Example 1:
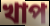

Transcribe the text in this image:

খাপ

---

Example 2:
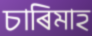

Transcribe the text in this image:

চাৰিমাহ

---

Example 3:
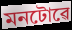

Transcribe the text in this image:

মনটোৱে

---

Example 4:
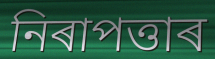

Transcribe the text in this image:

নিৰাপত্তাৰ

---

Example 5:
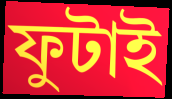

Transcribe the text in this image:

ফুটাই